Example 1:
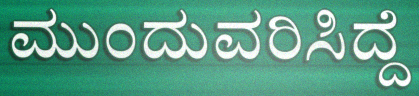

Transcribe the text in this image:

ಮುಂದುವರಿಸಿದ್ದೆ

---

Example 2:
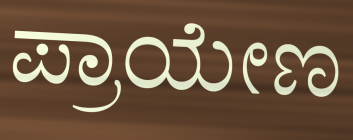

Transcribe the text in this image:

ಪ್ರಾಯೇಣ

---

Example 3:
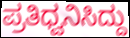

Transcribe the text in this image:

ಪ್ರತಿಧ್ವನಿಸಿದ್ದು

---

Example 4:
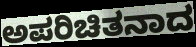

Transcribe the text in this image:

ಅಪರಿಚಿತನಾದ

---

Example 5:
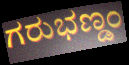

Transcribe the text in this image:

ಗರುಭಣ್ಡಂ